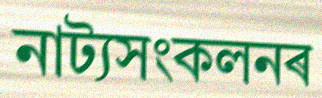
নাট্যসংকলনৰ